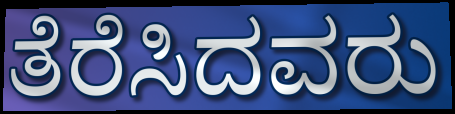
ತೆರೆಸಿದವರು